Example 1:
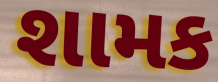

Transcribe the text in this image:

શામક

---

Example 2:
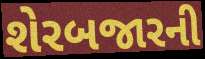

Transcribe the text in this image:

શેરબજારની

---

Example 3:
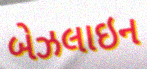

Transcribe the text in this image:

બેઝલાઇન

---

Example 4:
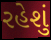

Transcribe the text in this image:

રહેશું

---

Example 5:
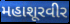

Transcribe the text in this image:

મહાશૂરવીર